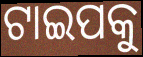
ଟାଇପକୁ